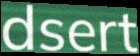
dsert